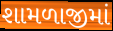
શામળાજીમાં